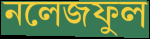
নলেজফুল